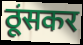
ठूंसकर